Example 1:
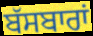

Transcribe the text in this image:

ਬੱਸਬਾਰਾਂ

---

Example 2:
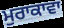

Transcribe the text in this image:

ਮੁਰਾਕਾਵਾ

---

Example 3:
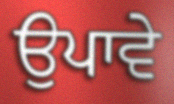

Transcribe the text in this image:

ਉਪਾਵੇ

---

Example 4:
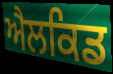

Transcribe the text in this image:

ਐਲਕਿਡ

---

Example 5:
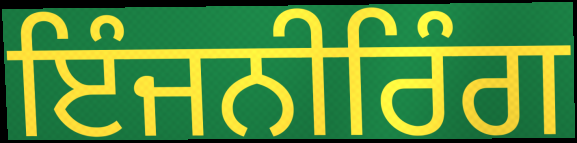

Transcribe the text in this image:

ਇੰਜਨੀਰਿੰਗ